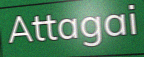
Attagai